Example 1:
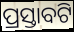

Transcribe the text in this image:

ପ୍ରସ୍ତାବଟି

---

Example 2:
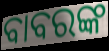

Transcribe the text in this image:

ବାବରଙ୍କ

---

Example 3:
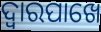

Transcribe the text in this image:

ଦ୍ୱାରପାଖେ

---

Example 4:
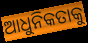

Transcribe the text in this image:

ଆଧୁନିକତାକୁ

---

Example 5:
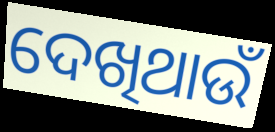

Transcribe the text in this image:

ଦେଖିଥାଉଁ